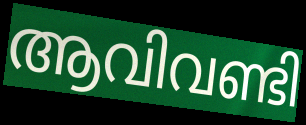
ആവിവണ്ടി